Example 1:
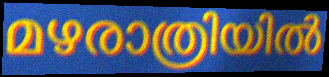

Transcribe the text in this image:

മഴരാത്രിയിൽ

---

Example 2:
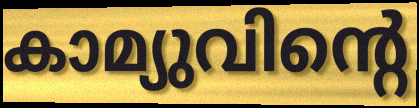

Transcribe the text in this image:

കാമ്യുവിന്റെ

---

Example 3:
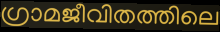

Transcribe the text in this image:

ഗ്രാമജീവിതത്തിലെ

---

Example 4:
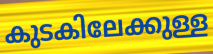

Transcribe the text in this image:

കുടകിലേക്കുള്ള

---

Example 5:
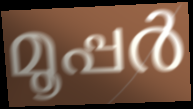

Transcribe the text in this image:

മൂപ്പർ